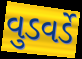
વુડવર્ડે